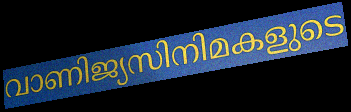
വാണിജ്യസിനിമകളുടെ